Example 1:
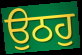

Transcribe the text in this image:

ਉਠਹੁ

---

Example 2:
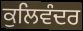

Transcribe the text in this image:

ਕੁਲਿਵੰਦਰ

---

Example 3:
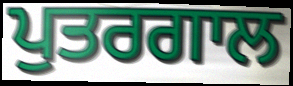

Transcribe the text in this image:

ਪੁਤਰਗਾਲ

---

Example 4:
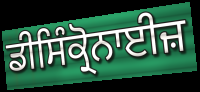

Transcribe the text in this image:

ਡੀਸਿੰਕ੍ਰੋਨਾਈਜ਼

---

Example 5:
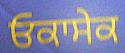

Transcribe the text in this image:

ਓਕਾਸੇਕ